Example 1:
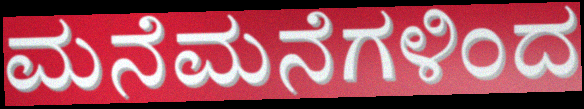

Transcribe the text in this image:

ಮನೆಮನೆಗಳಿಂದ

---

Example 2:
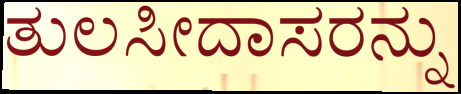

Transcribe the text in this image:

ತುಲಸೀದಾಸರನ್ನು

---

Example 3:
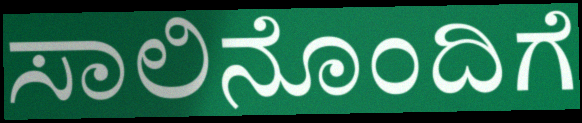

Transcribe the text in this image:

ಸಾಲಿನೊಂದಿಗೆ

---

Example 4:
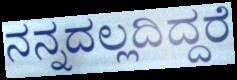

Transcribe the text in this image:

ನನ್ನದಲ್ಲದಿದ್ದರೆ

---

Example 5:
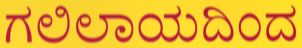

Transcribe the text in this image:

ಗಲಿಲಾಯದಿಂದ